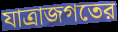
যাত্রাজগতের